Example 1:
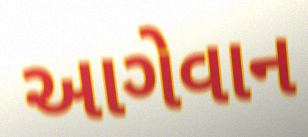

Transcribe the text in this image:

આગેવાન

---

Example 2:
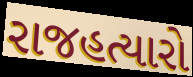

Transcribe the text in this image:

રાજહત્યારો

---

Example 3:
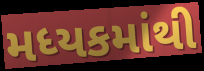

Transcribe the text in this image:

મધ્યકમાંથી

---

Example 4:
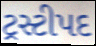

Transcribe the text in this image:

ટ્રસ્ટીપદ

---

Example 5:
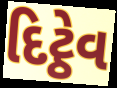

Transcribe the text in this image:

દિટ્ઠેવ